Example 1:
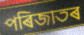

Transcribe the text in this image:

পৰিজাতৰ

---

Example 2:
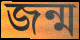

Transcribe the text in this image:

জন্ম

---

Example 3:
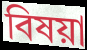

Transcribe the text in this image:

বিষয়া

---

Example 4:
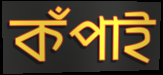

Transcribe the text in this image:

কঁপাই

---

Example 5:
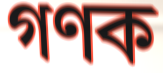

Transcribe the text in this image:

গণক